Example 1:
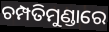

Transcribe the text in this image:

ଚମ୍ପତିମୁଣ୍ଡାରେ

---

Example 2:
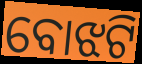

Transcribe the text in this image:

ବୋଝଟି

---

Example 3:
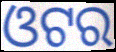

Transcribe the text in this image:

ଓଟର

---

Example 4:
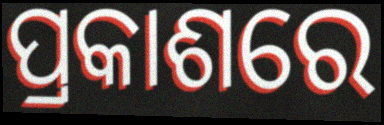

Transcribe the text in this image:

ପ୍ରକାଶରେ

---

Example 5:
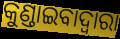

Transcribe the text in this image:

କୁଣ୍ଡାଇବାଦ୍ୱାରା